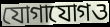
যোগাযোগও